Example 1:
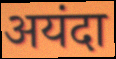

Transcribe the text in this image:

अयंदा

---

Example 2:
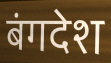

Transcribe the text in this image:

बंगदेश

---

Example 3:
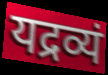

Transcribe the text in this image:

यद्रव्यं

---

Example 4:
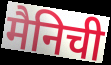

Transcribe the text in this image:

मैनिची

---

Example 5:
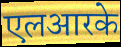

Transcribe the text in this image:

एलआरके